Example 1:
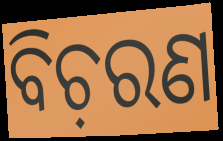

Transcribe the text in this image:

ବିଚ଼ରଣ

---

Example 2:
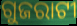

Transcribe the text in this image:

ଗୁଜରାଟୀ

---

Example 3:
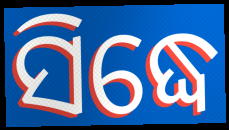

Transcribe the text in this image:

ସିଦ୍ଧେ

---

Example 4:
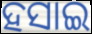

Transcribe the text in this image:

ହସାଇ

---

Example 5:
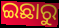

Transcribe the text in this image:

ଇଛାରୁ